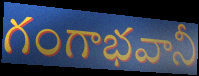
గంగాభవానీ